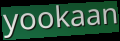
yookaan